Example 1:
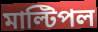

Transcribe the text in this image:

মাল্টিপল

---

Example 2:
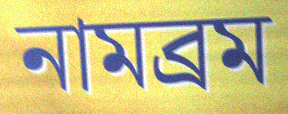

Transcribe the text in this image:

নামব্রম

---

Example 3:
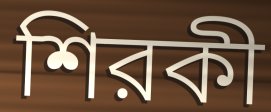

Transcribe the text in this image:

শিরকী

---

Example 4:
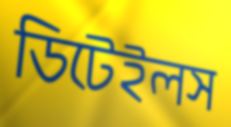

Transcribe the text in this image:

ডিটেইলস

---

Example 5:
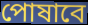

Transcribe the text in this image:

পোষাবে